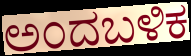
ಅಂದಬಳಿಕ